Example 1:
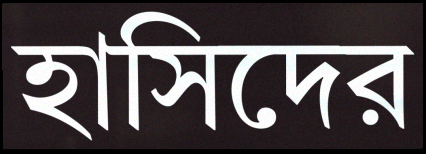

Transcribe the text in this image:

হাসিদের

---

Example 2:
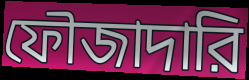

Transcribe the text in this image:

ফৌজাদারি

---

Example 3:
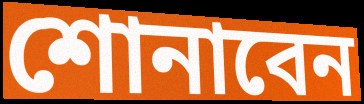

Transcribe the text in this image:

শোনাবেন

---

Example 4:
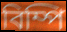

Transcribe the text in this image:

বিম্পি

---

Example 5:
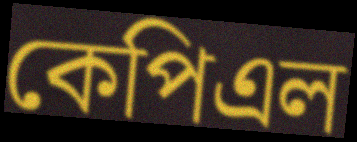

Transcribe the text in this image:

কেপিএল